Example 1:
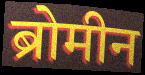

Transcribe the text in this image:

ब्रोमीन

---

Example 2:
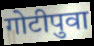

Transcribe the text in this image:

गोटीपुवा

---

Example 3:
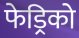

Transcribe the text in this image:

फेड्रिको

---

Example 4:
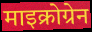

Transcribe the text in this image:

माइक्रोग्रेन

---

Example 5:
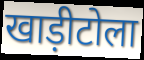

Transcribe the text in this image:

खाड़ीटोला